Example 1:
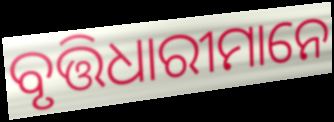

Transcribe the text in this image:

ବୃତ୍ତିଧାରୀମାନେ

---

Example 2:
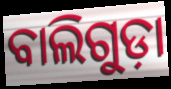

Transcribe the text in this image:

ବାଲିଗୁଡ଼ା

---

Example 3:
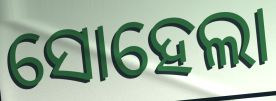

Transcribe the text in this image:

ସୋହେଲା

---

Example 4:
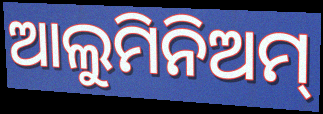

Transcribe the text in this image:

ଆଲୁମିନିଅମ୍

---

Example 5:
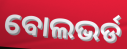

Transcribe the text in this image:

ବୋଲଭର୍ଡ